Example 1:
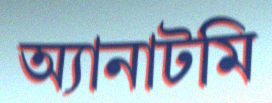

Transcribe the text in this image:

অ্যানাটমি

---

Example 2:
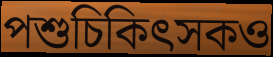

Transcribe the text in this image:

পশুচিকিৎসকও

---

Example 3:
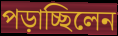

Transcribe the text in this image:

পড়াচ্ছিলেন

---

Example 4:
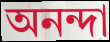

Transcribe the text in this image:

অনন্দা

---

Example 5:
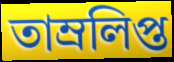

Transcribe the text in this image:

তাম্রলিপ্ত